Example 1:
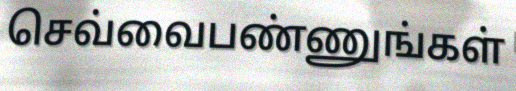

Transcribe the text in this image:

செவ்வைபண்ணுங்கள்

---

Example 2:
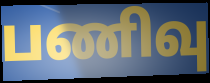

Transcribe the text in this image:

பணிவு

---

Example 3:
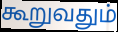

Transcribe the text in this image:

கூறுவதும்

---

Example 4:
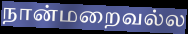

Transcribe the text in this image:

நான்மறைவல்ல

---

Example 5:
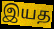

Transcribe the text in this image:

இயத